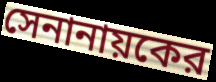
সেনানায়কের